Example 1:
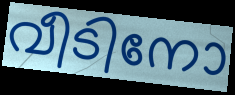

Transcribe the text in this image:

വീടിനോ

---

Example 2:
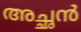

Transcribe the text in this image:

അച്ഛൻ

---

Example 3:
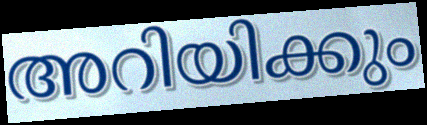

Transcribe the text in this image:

അറിയിക്കും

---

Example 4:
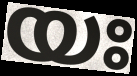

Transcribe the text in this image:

യഃ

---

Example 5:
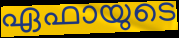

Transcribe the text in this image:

ഏഫായുടെ